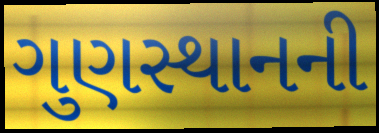
ગુણસ્થાનની